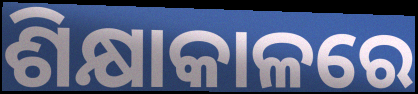
ଶିକ୍ଷାକାଳରେ